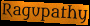
Ragupathy